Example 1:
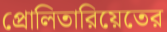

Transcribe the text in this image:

প্রোলিতারিয়েতের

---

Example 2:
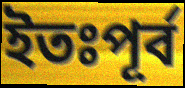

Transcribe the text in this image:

ইতঃপূর্ব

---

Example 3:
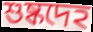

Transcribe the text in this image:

শুষ্কদেহ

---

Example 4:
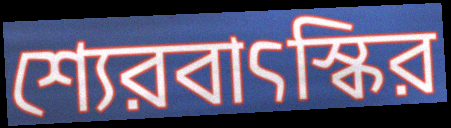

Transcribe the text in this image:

শ্যেরবাৎস্কির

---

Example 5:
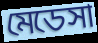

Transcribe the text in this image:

মেডেসা